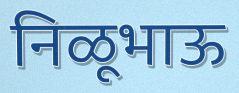
निळूभाऊ